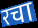
रचा